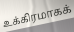
உக்கிரமாகக்